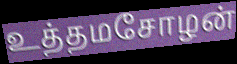
உத்தமசோழன்